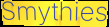
Smythies